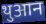
थुआन